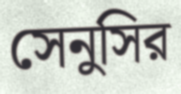
সেনুসির